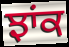
ਝਾਂਕ